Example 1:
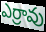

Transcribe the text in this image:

ఎర్రావు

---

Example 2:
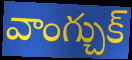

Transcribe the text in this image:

వాంగ్చుక్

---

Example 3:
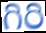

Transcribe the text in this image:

గిరి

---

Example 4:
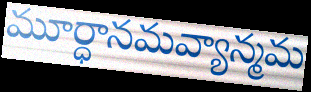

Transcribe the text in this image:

మూర్ధానమవ్యాన్మమ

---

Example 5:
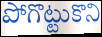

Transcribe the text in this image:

పోగొట్టుకొని